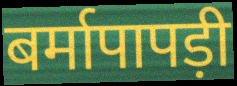
बर्मापापड़ी